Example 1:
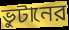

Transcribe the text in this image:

ভুটানের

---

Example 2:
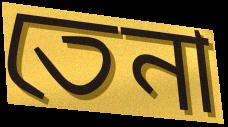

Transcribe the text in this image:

তেনা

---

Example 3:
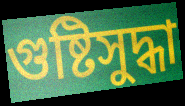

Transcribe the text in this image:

গুষ্টিসুদ্ধা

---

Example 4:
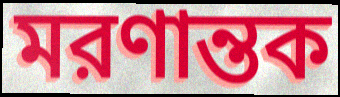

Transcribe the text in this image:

মরণান্তক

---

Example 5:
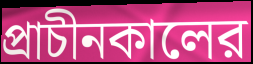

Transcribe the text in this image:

প্রাচীনকালের